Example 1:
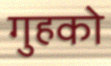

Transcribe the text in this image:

गुहको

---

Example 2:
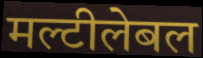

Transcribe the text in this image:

मल्टीलेबल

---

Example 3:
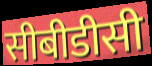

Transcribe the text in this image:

सीबीडीसी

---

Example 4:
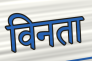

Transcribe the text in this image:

विनता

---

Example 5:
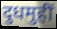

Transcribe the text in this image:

दुधमुहीं